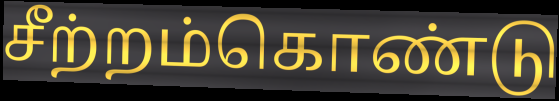
சீற்றம்கொண்டு